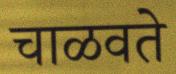
चाळवते